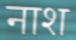
नाश